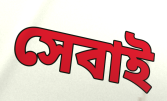
সেবাই